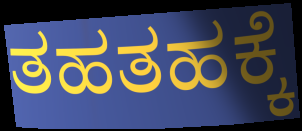
ತಹತಹಕ್ಕೆ